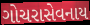
ગોચરાસેવનાય